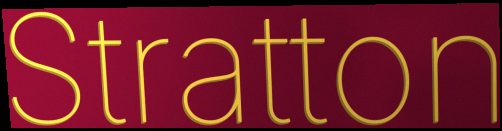
Stratton